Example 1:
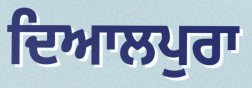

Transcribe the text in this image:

ਦਿਆਲਪੁਰਾ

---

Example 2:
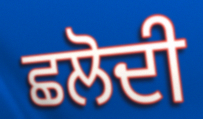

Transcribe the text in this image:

ਛਲੋਦੀ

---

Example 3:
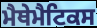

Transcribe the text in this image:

ਮੈਥੇਮੈਟਿਕਸ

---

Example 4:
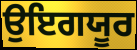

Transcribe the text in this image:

ਉਇਗਯੂਰ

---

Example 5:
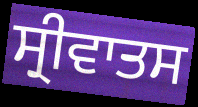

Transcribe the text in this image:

ਸ੍ਰੀਵਾਤਸ